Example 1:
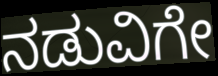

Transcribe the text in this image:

ನಡುವಿಗೇ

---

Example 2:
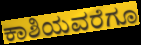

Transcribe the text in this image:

ಕಾಶಿಯವರೆಗೂ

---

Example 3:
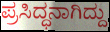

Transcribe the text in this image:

ಪ್ರಸಿದ್ಧನಾಗಿದ್ದು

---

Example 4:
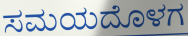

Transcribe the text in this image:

ಸಮಯದೊಳಗ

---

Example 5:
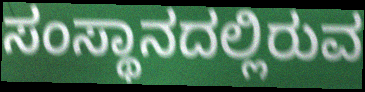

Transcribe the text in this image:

ಸಂಸ್ಥಾನದಲ್ಲಿರುವ